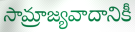
సామ్రాజ్యవాదానికీ